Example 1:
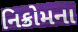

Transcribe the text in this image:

નિક્રોમના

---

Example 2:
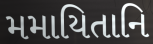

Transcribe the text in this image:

મમાયિતાનિ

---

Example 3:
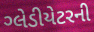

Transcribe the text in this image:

ગ્લેડીયેટરની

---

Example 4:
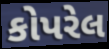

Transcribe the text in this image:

કોપરેલ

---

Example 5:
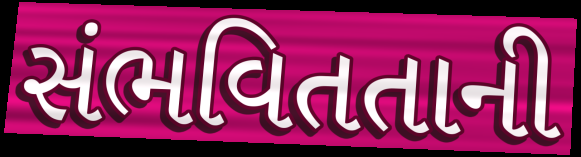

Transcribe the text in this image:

સંભવિતતાની